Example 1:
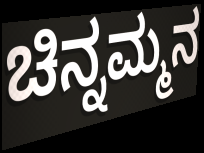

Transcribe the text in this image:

ಚಿನ್ನಮ್ಮನ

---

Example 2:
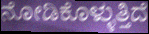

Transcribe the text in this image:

ನೋಡಿಕೊಳ್ಳುತ್ತಿದೆ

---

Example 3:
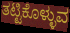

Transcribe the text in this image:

ತಟ್ಟಿಕೊಳ್ಳುವ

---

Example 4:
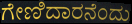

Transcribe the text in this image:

ಗೇಣಿದಾರನೆಂದು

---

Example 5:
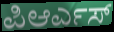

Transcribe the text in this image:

ಪಿಆರ್ಎಸ್